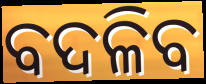
ବଦଳିବ